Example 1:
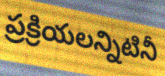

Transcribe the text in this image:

ప్రక్రియలన్నిటినీ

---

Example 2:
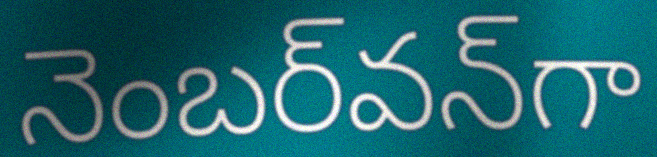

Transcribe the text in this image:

నెంబర్‌వన్‌గా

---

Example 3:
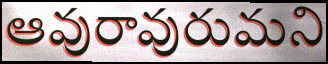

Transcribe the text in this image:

ఆవురావురుమని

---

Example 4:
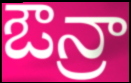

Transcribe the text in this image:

ఔన్రా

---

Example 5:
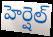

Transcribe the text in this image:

హెర్షెల్